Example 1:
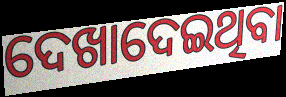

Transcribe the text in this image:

ଦେଖାଦେଇଥିବା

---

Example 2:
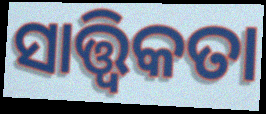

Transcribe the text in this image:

ସାତ୍ତ୍ବିକତା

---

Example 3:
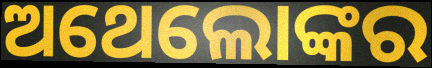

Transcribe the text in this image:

ଅଥେଲୋଙ୍କର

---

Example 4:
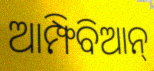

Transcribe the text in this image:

ଆମ୍ଫିବିଆନ୍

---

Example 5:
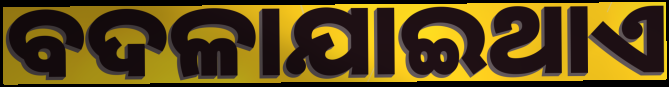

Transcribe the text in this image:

ବଦଳାଯାଇଥାଏ